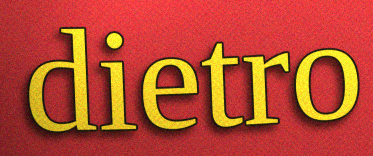
dietro